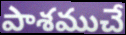
పాశముచే